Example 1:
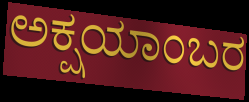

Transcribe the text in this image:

ಅಕ್ಷಯಾಂಬರ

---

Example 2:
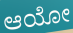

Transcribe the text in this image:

ಆಯೋ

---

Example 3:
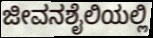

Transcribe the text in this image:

ಜೀವನಶೈಲಿಯಲ್ಲಿ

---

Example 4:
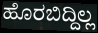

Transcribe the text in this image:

ಹೊರಬಿದ್ದಿಲ್ಲ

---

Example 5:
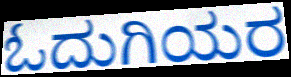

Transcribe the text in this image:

ಓದುಗಿಯರ